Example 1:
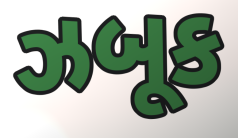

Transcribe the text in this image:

ઝબૂક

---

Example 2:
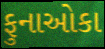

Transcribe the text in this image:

ફુનાઓકા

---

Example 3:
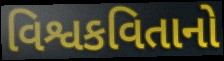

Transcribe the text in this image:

વિશ્વકવિતાનો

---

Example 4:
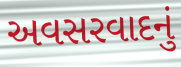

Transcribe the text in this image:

અવસરવાદનું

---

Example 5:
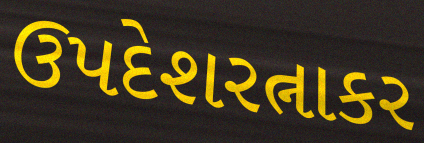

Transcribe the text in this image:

ઉપદેશરત્નાકર